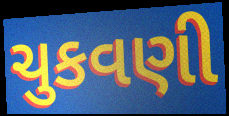
ચુકવણી